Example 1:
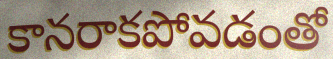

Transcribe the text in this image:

కానరాకపోవడంతో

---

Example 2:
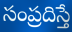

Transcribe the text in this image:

సంప్రదిస్తే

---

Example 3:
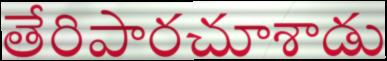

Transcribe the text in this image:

తేరిపారచూశాడు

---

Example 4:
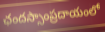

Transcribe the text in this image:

ఛందస్సాంప్రదాయంలో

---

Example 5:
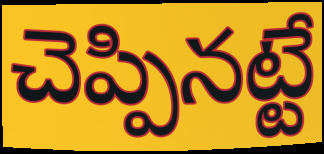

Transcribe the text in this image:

చెప్పినట్టే